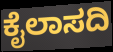
ಕೈಲಾಸದಿ